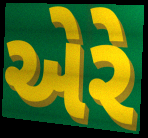
એરે